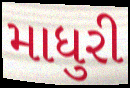
માધુરી